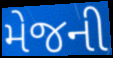
મેજની